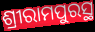
ଶ୍ରୀରାମପୁରସ୍ଥ